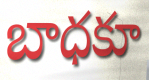
బాధకూ